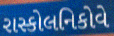
રાસ્કોલનિકોવે